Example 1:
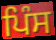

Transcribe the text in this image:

ਪਿੰਸ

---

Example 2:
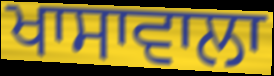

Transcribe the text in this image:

ਖਾਸਾਵਾਲਾ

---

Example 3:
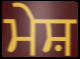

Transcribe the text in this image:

ਮੇਸ਼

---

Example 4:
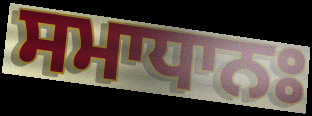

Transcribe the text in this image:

ਸਮਾਧਾਨਃ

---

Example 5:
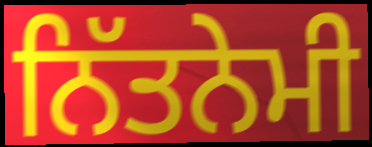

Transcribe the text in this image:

ਨਿੱਤਨੇਮੀ